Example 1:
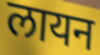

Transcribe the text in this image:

लायन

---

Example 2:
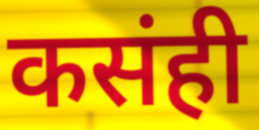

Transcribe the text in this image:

कसंही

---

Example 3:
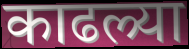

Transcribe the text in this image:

काढल्या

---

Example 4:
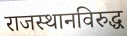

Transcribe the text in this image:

राजस्थानविरुद्ध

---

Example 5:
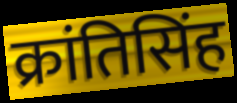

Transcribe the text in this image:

क्रांतिसिंह